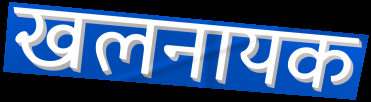
खलनायक